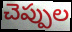
చెప్పుల